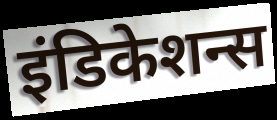
इंडिकेशन्स